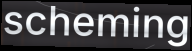
scheming